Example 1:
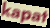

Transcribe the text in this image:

kapat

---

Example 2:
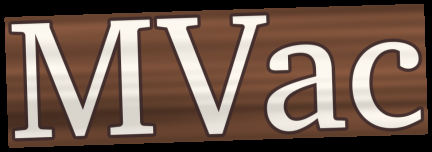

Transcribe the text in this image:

MVac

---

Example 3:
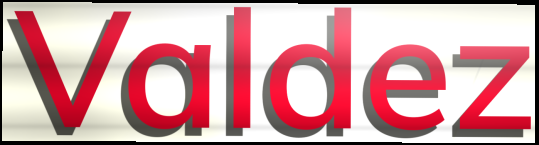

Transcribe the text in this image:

Valdez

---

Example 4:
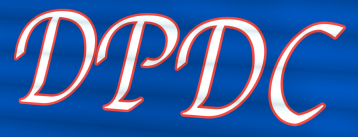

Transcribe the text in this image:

DPDC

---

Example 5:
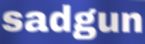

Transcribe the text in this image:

sadgun